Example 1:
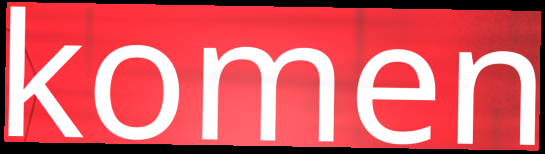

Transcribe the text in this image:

komen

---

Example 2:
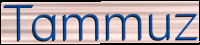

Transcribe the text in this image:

Tammuz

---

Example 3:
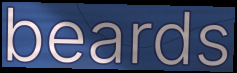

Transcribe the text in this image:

beards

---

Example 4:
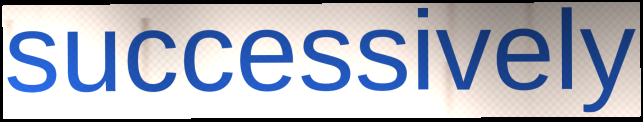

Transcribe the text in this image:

successively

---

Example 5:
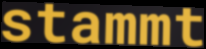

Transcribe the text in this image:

stammt